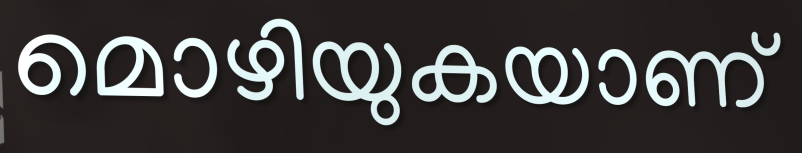
മൊഴിയുകയാണ്